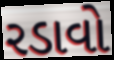
રડાવો